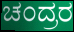
ಚಂದ್ರರ